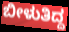
ಬೀಳುತಿದ್ದ